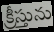
క్రీస్తును